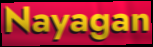
Nayagan